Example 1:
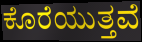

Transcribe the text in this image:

ಕೊರೆಯುತ್ತವೆ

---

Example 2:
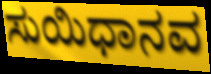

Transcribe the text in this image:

ಸುಯಿಧಾನವ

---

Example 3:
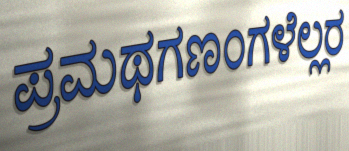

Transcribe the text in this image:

ಪ್ರಮಥಗಣಂಗಳೆಲ್ಲರ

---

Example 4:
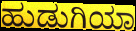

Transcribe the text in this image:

ಹುಡುಗಿಯಾ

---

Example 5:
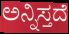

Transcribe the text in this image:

ಅನ್ನಿಸ್ತದೆ